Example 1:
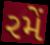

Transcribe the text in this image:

રમેં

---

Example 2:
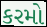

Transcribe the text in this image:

કરમો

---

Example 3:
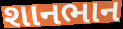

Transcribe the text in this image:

શાનભાન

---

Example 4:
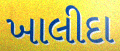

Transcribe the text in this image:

ખાલીદા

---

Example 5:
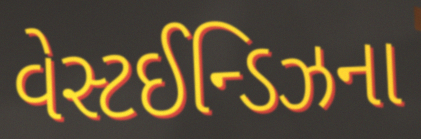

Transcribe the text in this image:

વેસ્ટઈન્ડિઝના